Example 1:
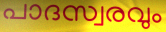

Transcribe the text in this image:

പാദസ്വരവും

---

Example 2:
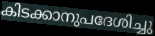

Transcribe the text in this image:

കിടക്കാനുപദേശിച്ചു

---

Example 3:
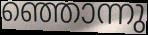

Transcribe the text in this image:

ഞ്ഞൊന്നു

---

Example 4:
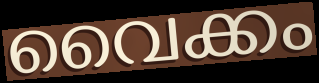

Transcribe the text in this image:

വൈക്കം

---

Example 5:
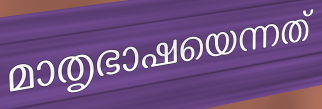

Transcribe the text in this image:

മാതൃഭാഷയെന്നത്